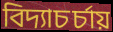
বিদ্যাচর্চায়